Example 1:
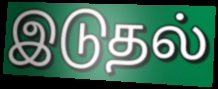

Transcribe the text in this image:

இடுதல்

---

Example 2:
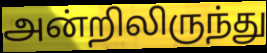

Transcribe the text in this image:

அன்றிலிருந்து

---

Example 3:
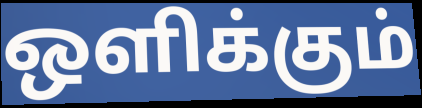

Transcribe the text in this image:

ஒளிக்கும்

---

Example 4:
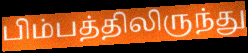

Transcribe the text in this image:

பிம்பத்திலிருந்து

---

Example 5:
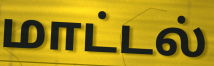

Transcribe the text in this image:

மாட்டல்